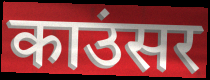
काउंसर